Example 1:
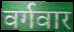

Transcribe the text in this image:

वर्गवार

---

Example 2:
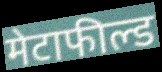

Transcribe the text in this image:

मेटाफील्ड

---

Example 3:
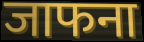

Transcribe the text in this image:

जाफना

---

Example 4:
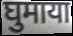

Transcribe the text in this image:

घुमाया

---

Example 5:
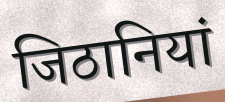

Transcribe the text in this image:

जिठानियां